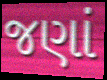
જણાં